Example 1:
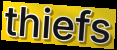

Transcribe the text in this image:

thiefs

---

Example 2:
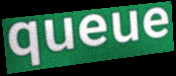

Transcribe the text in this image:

queue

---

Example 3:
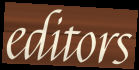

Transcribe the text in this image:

editors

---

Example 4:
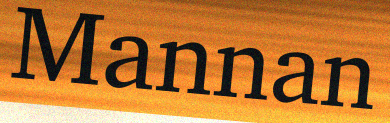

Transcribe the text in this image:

Mannan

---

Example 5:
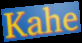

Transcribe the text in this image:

Kahe